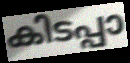
കിടപ്പാ